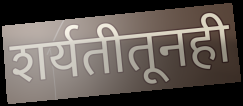
शर्यतीतूनही